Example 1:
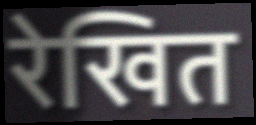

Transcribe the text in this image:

रेखित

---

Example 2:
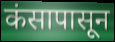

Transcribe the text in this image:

कंसापासून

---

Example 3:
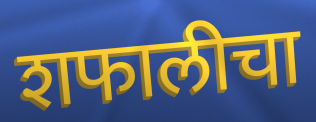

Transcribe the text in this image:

शफालीचा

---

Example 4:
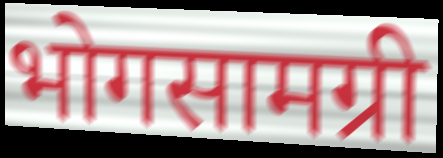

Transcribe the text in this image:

भोगसामग्री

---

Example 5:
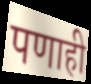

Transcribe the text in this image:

पणाही